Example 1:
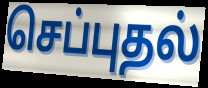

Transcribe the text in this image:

செப்புதல்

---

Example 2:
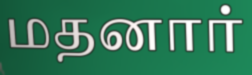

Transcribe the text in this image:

மதனார்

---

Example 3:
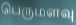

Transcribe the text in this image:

பெருமளவு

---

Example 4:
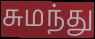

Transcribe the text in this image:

சுமந்து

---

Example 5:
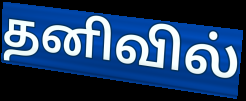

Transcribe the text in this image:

தனிவில்